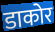
डाकोर